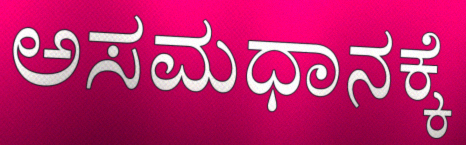
ಅಸಮಧಾನಕ್ಕೆ